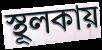
স্থূলকায়